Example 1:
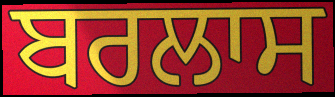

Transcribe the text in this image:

ਬਰਲਾਸ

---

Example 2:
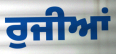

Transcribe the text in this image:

ਰੁਜੀਆਂ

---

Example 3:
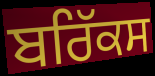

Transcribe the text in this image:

ਬਰਿੱਕਸ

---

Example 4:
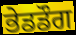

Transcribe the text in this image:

ਭੇਡਡੌਗ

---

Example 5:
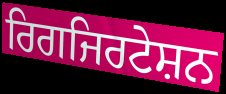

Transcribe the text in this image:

ਰਿਗਜਿਰਟੇਸ਼ਨ